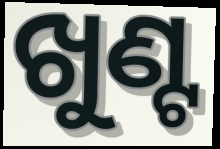
ଖୁଣ୍ଟ